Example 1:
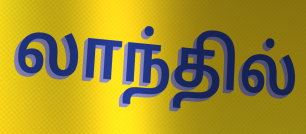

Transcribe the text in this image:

லாந்தில்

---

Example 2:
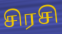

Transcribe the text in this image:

சிரசி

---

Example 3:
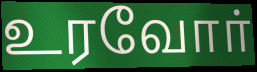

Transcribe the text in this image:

உரவோர்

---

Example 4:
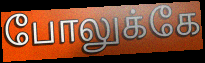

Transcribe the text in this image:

போலுக்கே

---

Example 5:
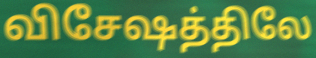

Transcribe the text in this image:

விசேஷத்திலே